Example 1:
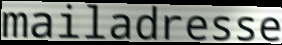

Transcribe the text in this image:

mailadresse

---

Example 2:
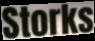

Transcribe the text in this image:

Storks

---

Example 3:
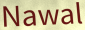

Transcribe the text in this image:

Nawal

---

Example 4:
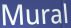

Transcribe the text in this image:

Mural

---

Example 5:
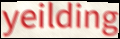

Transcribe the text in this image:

yeilding